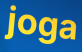
joga